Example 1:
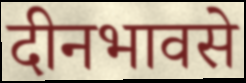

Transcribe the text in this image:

दीनभावसे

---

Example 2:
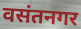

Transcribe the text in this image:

वसंतनगर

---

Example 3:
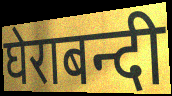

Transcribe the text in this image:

घेराबन्दी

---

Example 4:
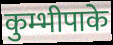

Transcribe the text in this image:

कुम्भीपाके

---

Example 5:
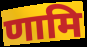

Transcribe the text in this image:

णामि